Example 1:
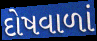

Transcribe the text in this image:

દોષવાળાં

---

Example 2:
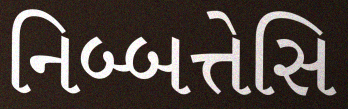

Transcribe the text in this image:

નિબ્બત્તેસિ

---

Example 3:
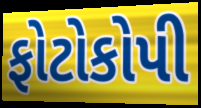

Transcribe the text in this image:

ફોટોકોપી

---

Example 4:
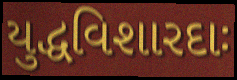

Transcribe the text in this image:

યુદ્ધવિશારદાઃ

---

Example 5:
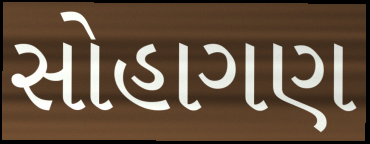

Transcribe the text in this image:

સોહાગણ